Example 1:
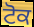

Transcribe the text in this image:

ਟੋਕ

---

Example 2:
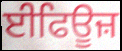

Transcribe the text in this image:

ਈਫਿਊਜ਼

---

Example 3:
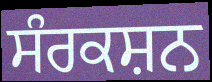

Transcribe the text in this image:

ਸੰਰਕਸ਼ਨ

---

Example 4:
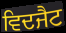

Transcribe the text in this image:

ਵਿਦਜੈਟ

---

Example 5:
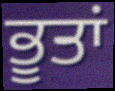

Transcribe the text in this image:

ਭੂਤਾਂ